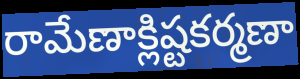
రామేణాక్లిష్టకర్మణా